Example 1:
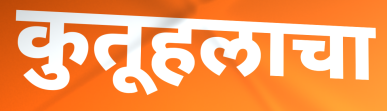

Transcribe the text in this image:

कुतूहलाचा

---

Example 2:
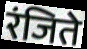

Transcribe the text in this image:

रंजिते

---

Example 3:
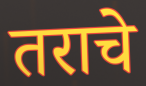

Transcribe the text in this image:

तराचे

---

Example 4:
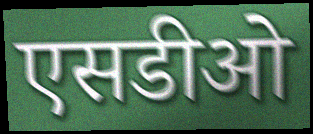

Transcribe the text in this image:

एसडीओ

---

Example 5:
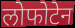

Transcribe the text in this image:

लोफोटेन